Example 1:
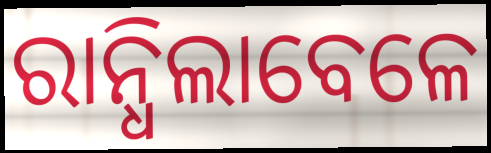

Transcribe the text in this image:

ରାନ୍ଧିଲାବେଳେ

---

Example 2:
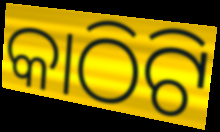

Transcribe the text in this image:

କାଠିଟି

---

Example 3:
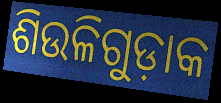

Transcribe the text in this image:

ଶିଉଳିଗୁଡ଼ାକ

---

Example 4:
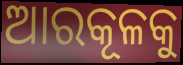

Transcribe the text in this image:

ଆରକୂଳକୁ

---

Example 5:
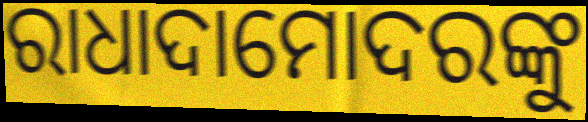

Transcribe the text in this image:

ରାଧାଦାମୋଦରଙ୍କୁ